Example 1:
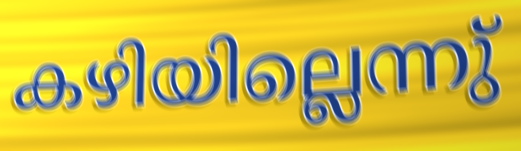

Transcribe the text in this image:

കഴിയില്ലെന്നു്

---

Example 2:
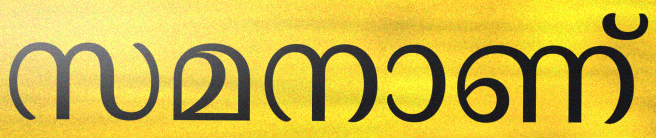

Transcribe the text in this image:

സമനാണ്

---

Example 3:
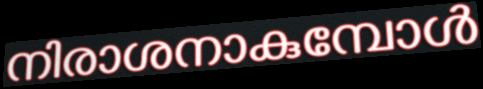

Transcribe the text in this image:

നിരാശനാകുമ്പോൾ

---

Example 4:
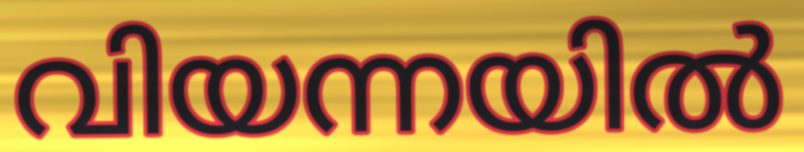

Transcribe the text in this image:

വിയന്നയിൽ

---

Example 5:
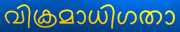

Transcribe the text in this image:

വിക്രമാധിഗതാ